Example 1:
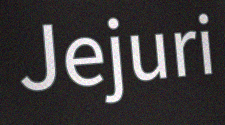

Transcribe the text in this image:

Jejuri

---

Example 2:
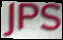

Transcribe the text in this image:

JPS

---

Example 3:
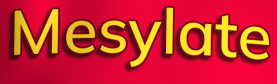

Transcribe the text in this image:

Mesylate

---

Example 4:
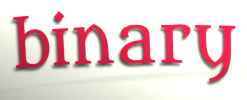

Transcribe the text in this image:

binary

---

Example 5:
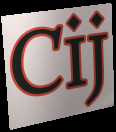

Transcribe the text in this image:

Cij